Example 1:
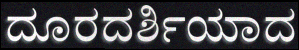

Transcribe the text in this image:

ದೂರದರ್ಶಿಯಾದ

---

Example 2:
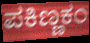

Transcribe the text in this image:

ಪಕಿಣ್ಣಕಂ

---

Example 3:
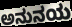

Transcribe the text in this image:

ಅನುನಯ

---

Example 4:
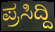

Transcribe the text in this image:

ಪ್ರಸಿದ್ದಿ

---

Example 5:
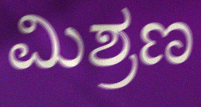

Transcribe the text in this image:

ಮಿಶ್ರಣ